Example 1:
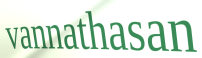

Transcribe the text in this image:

vannathasan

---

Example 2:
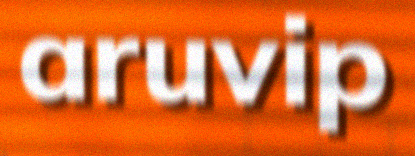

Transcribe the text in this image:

aruvip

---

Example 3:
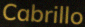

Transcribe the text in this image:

Cabrillo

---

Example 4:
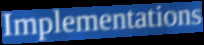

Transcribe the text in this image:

Implementations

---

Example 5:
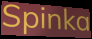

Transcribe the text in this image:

Spinka